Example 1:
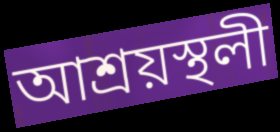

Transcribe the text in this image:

আশ্ৰয়স্থলী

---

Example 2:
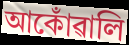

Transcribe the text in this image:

আকোঁৱালি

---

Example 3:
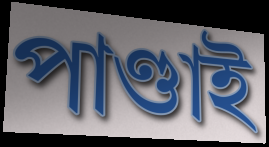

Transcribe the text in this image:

পাণ্ডাই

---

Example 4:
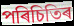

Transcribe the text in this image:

পৰিচিতিৰ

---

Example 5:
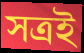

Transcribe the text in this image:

সত্ৰই